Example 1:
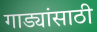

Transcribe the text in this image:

गाड्यांसाठी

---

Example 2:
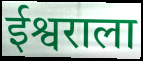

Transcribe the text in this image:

ईश्वराला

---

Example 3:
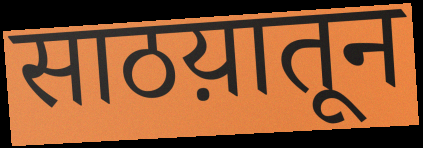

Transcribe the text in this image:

साठय़ातून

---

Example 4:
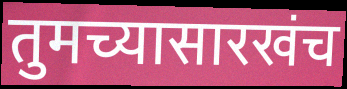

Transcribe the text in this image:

तुमच्यासारखंच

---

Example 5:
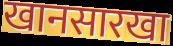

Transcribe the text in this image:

खानसारखा